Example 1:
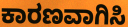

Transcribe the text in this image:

ಕಾರಣವಾಗಿಸಿ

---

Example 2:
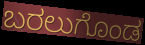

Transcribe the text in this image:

ಬರಲುಗೊಂಡ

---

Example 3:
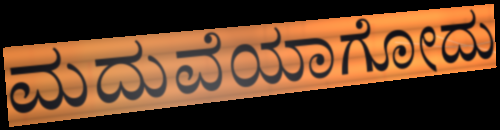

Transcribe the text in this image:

ಮದುವೆಯಾಗೋದು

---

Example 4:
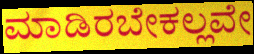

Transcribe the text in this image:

ಮಾಡಿರಬೇಕಲ್ಲವೇ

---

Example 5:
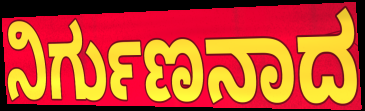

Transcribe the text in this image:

ನಿರ್ಗುಣನಾದ